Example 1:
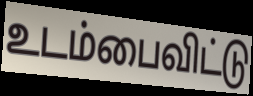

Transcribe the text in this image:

உடம்பைவிட்டு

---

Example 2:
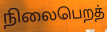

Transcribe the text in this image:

நிலைபெறத்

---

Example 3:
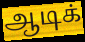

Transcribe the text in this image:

ஆடிக்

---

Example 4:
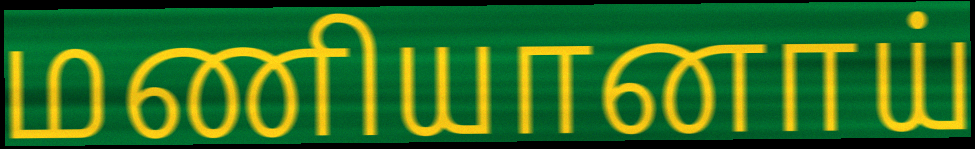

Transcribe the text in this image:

மணியானாய்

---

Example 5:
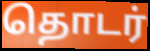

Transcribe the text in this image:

தொடர்